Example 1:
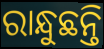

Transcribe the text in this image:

ରାନ୍ଧୁଛନ୍ତି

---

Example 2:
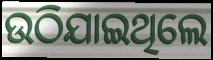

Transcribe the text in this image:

ଉଠିଯାଇଥିଲେ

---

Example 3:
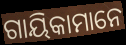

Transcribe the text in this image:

ଗାୟିକାମାନେ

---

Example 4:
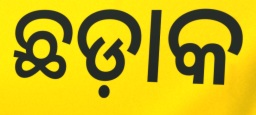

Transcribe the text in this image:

ଛଡ଼ାକ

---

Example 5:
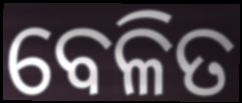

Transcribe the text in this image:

ବେଳିତ